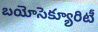
బయోసెక్యూరిటీ